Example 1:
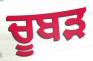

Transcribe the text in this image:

ਚੂਬੜ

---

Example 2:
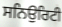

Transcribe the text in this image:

ਸਨਿਉਰਿਟੀ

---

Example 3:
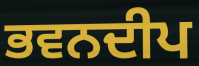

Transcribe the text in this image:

ਭਵਨਦੀਪ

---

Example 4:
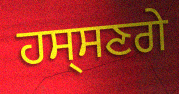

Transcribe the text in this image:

ਹਸ੍ਸਣਗੇ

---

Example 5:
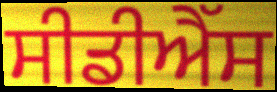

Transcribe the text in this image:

ਸੀਡੀਐੱਸ